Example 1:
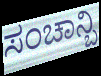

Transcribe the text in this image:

ಸಂಚಾನ್ಬಿ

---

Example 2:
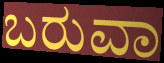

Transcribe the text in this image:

ಬರುವಾ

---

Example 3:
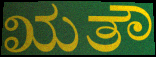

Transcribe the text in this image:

ಋತೌ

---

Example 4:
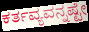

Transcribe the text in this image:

ಕರ್ತವ್ಯವನ್ನಷ್ಟೇ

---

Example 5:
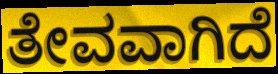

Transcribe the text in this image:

ತೇವವಾಗಿದೆ